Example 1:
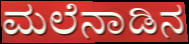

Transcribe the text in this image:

ಮಲೆನಾಡಿನ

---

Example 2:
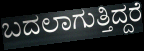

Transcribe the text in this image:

ಬದಲಾಗುತ್ತಿದ್ದರೆ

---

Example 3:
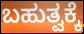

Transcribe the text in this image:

ಬಹುತ್ವಕ್ಕೆ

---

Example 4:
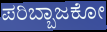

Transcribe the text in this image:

ಪರಿಬ್ಬಾಜಕೋ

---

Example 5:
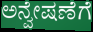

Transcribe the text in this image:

ಅನ್ವೇಷಣೆಗೆ